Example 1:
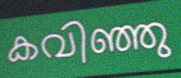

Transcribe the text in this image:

കവിഞ്ഞു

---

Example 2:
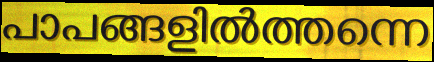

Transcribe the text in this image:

പാപങ്ങളിൽത്തന്നെ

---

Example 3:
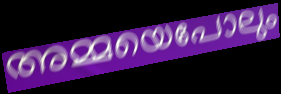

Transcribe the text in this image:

അമ്മയെപോലും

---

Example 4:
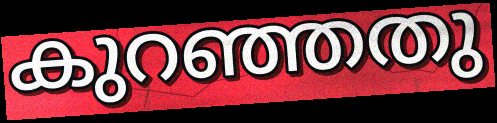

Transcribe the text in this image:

കുറഞ്ഞതു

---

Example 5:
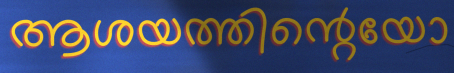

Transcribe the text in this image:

ആശയത്തിന്റെയോ